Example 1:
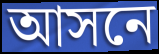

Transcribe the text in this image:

আসনে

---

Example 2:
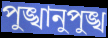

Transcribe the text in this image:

পুঙ্খানুপুঙ্খ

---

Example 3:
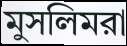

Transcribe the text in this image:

মুসলিমরা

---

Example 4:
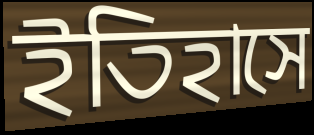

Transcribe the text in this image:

ইতিহাসে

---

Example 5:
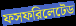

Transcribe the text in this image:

ফসফরিলেটেড